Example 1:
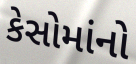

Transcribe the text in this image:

કેસોમાંનો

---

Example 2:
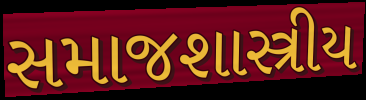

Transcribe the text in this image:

સમાજશાસ્ત્રીય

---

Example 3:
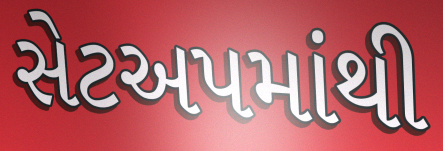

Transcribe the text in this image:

સેટઅપમાંથી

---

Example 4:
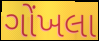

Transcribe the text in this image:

ગોંખલા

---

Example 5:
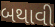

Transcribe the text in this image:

બથાવી